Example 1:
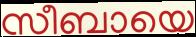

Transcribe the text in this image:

സീബായെ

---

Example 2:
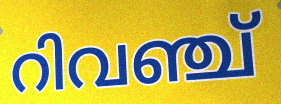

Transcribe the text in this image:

റിവഞ്ച്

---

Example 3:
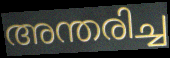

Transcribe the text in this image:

അന്തരിച്ച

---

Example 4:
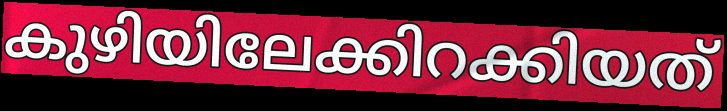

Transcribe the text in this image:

കുഴിയിലേക്കിറക്കിയത്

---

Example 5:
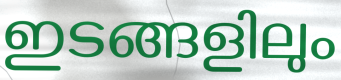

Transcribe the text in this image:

ഇടങ്ങളിലും